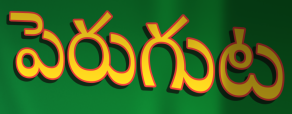
పెరుగుట